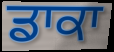
ਡਾਕਾ